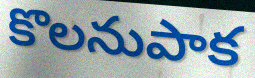
కొలనుపాక